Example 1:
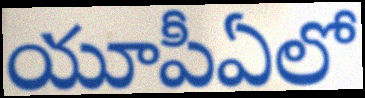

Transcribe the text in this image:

యూపీఏలో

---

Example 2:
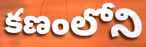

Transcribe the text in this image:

కణంలోని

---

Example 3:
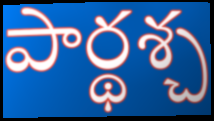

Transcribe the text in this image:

పార్థశ్చ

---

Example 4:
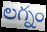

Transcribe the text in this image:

లగ్నం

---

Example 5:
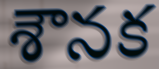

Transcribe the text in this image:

శౌనక